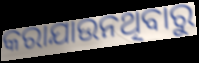
କରାଯାଉନଥିବାରୁ